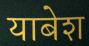
याबेश